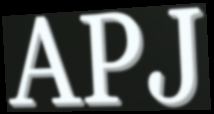
APJ